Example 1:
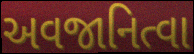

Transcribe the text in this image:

અવજાનિત્વા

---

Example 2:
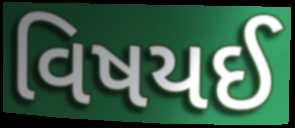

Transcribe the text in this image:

વિષયઈ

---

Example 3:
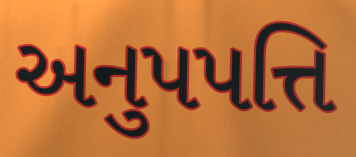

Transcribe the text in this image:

અનુપપત્તિ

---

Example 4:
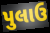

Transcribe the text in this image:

પુલાઉ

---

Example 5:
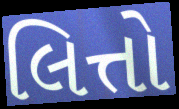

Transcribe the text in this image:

લિત્તો